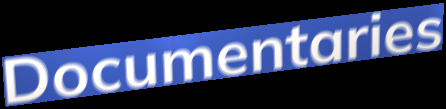
Documentaries